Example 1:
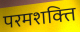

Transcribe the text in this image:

परमशक्ति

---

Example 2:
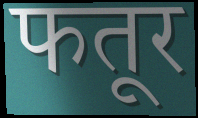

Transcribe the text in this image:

फतूर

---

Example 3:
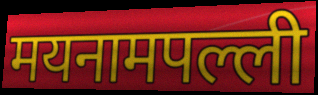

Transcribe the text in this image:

मयनामपल्ली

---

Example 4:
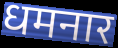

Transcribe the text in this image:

धमनार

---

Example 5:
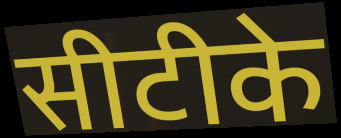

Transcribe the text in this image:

सीटीके